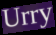
Urry